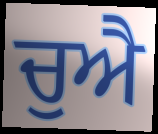
ਚੁਐ